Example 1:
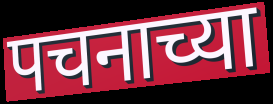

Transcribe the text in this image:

पचनाच्या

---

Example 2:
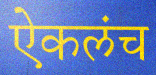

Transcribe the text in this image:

ऐकलंच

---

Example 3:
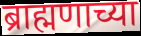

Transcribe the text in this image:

ब्राह्मणाच्या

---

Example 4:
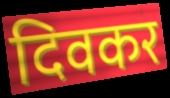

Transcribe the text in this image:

दिवकर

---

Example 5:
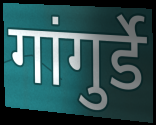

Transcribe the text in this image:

गांगुर्डे